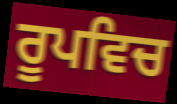
ਰੂਪਵਿਚ